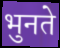
भुनते